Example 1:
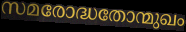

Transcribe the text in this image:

സമരോദ്ധതോന്മുഖം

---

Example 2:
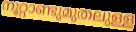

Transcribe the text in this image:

നൂറ്റാണ്ടുമുതലുള്ള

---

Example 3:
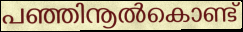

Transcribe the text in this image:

പഞ്ഞിനൂൽകൊണ്ട്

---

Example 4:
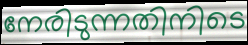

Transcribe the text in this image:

നേരിടുന്നതിനിടെ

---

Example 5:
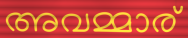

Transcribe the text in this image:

അവമ്മാര്